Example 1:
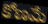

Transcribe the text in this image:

కోణమే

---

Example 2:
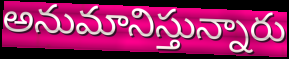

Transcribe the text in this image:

అనుమానిస్తున్నారు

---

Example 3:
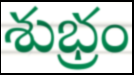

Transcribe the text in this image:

శుభ్రం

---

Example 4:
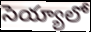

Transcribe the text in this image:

సెయ్యాలో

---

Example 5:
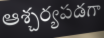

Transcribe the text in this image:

ఆశ్చర్యపడగా